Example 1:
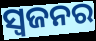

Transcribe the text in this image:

ସ୍ୱଜନର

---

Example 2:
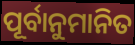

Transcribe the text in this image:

ପୂର୍ବାନୁମାନିତ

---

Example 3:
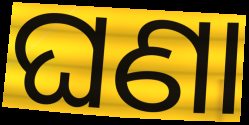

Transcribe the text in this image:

ଘଣା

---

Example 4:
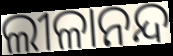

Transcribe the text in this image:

ଲୀଳାନନ୍ଦ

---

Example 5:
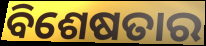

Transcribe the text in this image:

ବିଶେଷତାର